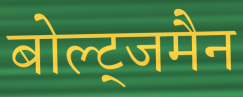
बोल्ट्जमैन